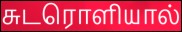
சுடரொளியால்